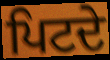
ਪਿਟਦੇ